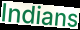
Indians